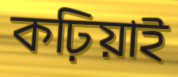
কঢ়িয়াই